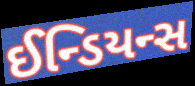
ઈન્ડિયન્સ